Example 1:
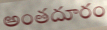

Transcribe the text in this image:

అంతదూరం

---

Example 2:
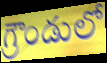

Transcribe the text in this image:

గ్రౌండులో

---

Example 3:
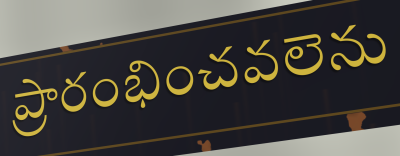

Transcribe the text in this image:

ప్రారంభించవలెను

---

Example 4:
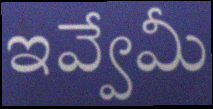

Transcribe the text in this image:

ఇవ్వేమీ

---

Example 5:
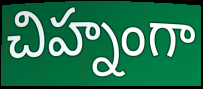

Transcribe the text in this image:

చిహ్నంగా